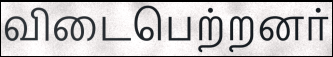
விடைபெற்றனர்